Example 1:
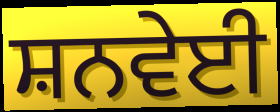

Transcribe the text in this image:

ਸ਼ਨਵੇਈ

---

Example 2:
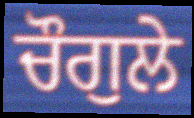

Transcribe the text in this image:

ਚੌਗੁਲੇ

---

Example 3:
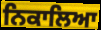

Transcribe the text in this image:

ਨਿਕਾਲਿਆ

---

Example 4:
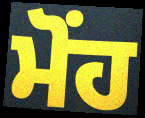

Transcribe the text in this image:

ਮੋਂਹ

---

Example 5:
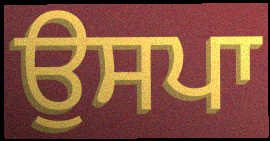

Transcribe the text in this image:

ਉਸਪਾ